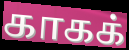
காகக்